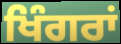
ਖਿੰਗਰਾਂ